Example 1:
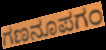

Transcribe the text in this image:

ಗಣನೂಪಗಂ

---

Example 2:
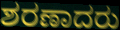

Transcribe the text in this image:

ಶರಣಾದರು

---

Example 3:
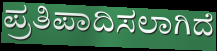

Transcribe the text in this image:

ಪ್ರತಿಪಾದಿಸಲಾಗಿದೆ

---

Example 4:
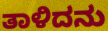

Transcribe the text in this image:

ತಾಳಿದನು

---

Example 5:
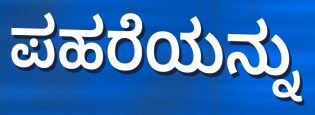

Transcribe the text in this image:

ಪಹರೆಯನ್ನು